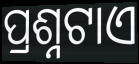
ପ୍ରଶ୍ନଟାଏ